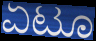
ಏಟೂ